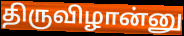
திருவிழான்னு